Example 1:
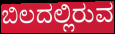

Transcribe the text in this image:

ಬಿಲದಲ್ಲಿರುವ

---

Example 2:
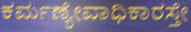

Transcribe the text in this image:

ಕರ್ಮಣ್ಯೇವಾಧಿಕಾರಸ್ತೇ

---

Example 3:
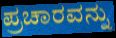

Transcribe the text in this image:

ಪ್ರಚಾರವನ್ನು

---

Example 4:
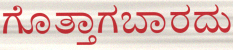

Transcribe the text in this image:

ಗೊತ್ತಾಗಬಾರದು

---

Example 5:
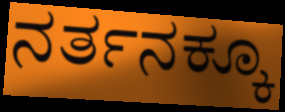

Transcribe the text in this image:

ನರ್ತನಕ್ಕೂ